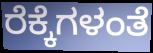
ರೆಕ್ಕೆಗಳಂತೆ